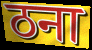
ठना